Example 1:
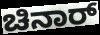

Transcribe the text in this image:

ಚಿನಾರ್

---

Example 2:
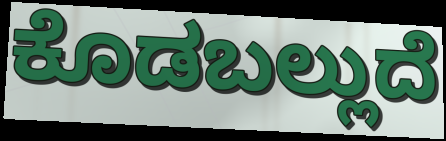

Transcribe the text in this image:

ಕೊಡಬಲ್ಲುದೆ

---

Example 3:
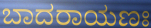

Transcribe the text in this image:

ಬಾದರಾಯಣಃ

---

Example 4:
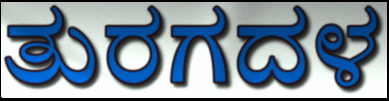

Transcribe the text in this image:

ತುರಗದಳ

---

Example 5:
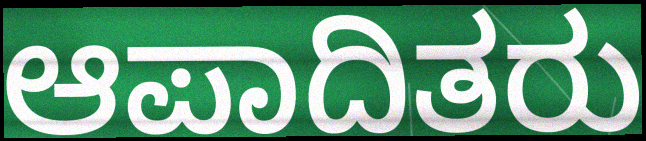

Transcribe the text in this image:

ಆಪಾದಿತರು